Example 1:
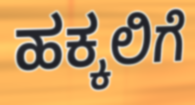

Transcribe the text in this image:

ಹಕ್ಕಲಿಗೆ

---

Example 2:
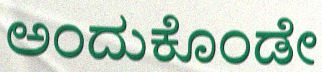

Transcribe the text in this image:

ಅಂದುಕೊಂಡೇ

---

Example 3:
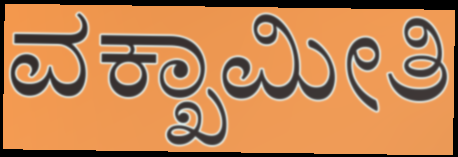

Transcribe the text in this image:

ವಕ್ಖಾಮೀತಿ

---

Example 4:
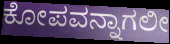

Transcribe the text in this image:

ಕೋಪವನ್ನಾಗಲೀ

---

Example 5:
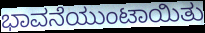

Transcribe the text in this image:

ಭಾವನೆಯುಂಟಾಯಿತು